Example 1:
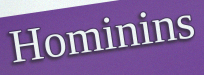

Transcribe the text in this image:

Hominins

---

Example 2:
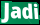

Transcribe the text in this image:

Jadi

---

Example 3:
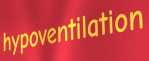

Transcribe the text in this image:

hypoventilation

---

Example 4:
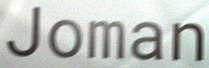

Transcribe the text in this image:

Joman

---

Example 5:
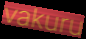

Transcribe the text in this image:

vakuru